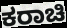
ಕರಾಚಿ